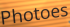
Photoes